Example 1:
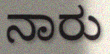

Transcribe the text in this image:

ನಾರು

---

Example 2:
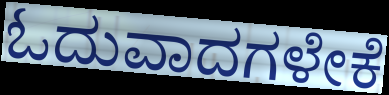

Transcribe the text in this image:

ಓದುವಾದಗಳೇಕೆ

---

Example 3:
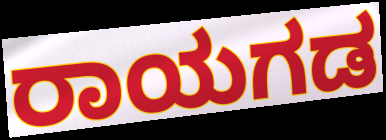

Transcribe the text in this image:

ರಾಯಗಡ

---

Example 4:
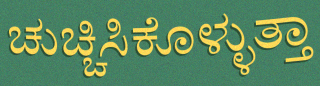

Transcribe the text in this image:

ಚುಚ್ಚಿಸಿಕೊಳ್ಳುತ್ತಾ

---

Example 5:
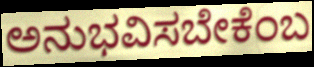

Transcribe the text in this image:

ಅನುಭವಿಸಬೇಕೆಂಬ